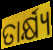
ତାର୍କ୍ଷ୍ୟ